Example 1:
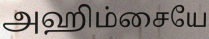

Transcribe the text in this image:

அஹிம்சையே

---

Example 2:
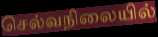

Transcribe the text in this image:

செல்வநிலையில்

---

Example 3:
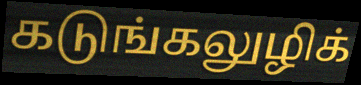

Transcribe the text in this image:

கடுங்கலுழிக்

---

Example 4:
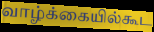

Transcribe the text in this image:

வாழ்க்கையில்கூட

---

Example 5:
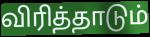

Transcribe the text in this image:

விரித்தாடும்